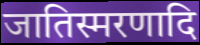
जातिस्मरणादि